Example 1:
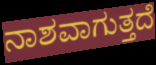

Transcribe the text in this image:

ನಾಶವಾಗುತ್ತದೆ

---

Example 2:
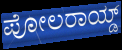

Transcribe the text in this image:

ಪೋಲರಾಯ್ಡ್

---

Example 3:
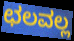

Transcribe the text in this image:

ಛಲವಲ್ಲ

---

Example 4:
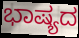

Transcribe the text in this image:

ಭಾಷ್ಯದ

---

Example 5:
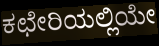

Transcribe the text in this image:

ಕಛೇರಿಯಲ್ಲಿಯೇ